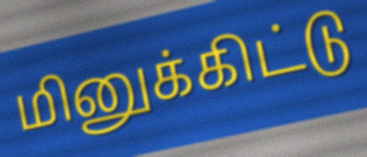
மினுக்கிட்டு